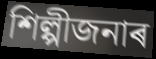
শিল্পীজনাৰ